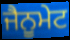
ਜੈਨੂਮੇਟ